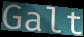
Galt